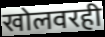
खोलवरही